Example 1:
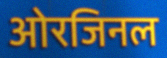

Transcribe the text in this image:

ओरजिनल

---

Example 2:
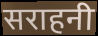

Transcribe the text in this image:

सराहनी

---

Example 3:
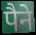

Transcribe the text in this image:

पैने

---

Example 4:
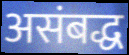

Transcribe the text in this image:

असंबद्ध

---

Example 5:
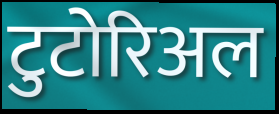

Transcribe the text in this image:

टुटोरिअल